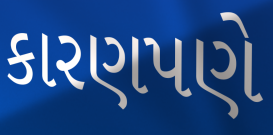
કારણપણે